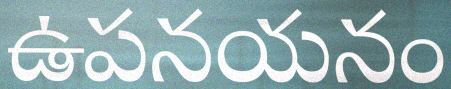
ఉపనయనం